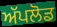
ਅੱਪਲੋਡ